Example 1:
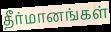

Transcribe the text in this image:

தீர்மானங்கள்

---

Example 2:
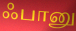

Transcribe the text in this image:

ஃபானு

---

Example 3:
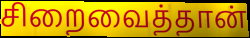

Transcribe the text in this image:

சிறைவைத்தான்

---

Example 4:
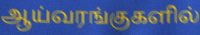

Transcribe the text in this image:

ஆய்வரங்குகளில்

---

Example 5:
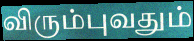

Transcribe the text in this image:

விரும்புவதும்